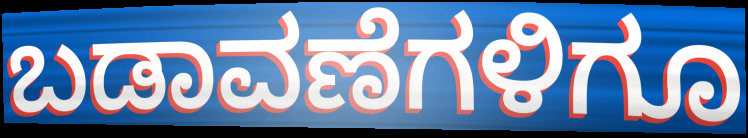
ಬಡಾವಣೆಗಳಿಗೂ